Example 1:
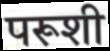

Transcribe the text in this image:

परूशी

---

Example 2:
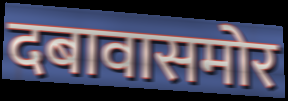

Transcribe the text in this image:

दबावासमोर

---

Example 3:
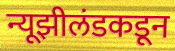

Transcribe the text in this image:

न्यूझीलंडकडून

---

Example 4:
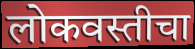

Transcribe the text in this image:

लोकवस्तीचा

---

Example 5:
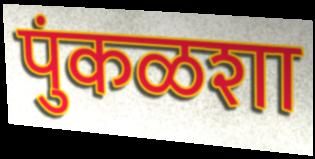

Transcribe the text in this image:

पुंकळशा